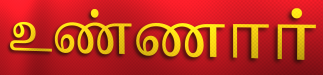
உண்ணார்